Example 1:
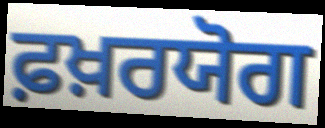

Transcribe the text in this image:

ਫ਼ਖ਼ਰਯੋਗ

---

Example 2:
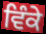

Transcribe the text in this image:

ਵਿੰਕੇ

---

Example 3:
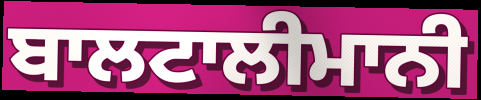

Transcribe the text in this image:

ਬਾਲਟਾਲੀਮਾਨੀ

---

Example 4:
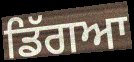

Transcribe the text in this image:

ਡਿੱਗਆ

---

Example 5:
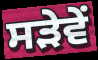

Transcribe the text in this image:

ਸੜੇਵੇਂ